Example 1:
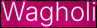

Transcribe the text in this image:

Wagholi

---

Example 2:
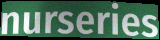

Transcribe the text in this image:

nurseries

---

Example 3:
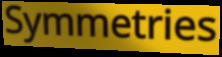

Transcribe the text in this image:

Symmetries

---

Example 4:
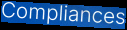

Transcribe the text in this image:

Compliances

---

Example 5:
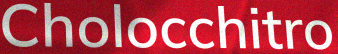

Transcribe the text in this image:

Cholocchitro